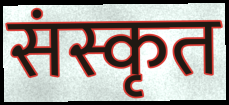
संस्कृत